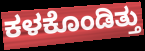
ಕಳಕೊಂಡಿತ್ತು